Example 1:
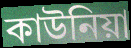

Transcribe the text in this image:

কাউনিয়া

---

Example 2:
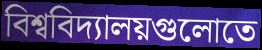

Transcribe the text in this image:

বিশ্ববিদ্যালয়গুলোতে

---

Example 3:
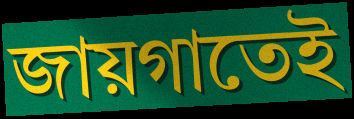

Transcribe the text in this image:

জায়গাতেই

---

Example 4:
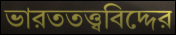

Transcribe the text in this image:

ভারততত্ত্ববিদ্দের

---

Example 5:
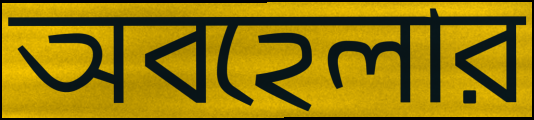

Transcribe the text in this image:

অবহেলার